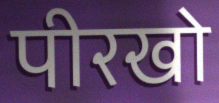
पीरखो